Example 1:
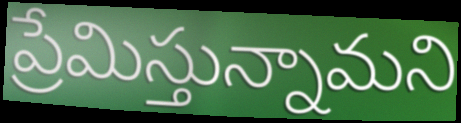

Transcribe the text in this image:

ప్రేమిస్తున్నామని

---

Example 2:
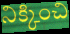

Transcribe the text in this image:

నిక్కించి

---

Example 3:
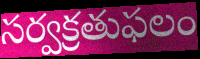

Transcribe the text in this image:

సర్వక్రతుఫలం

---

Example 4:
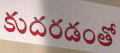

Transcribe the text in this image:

కుదరడంతో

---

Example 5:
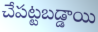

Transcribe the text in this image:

చేపట్టబడ్డాయి